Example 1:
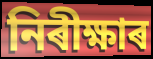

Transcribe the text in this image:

নিৰীক্ষাৰ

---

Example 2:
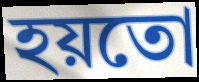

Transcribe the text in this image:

হয়তো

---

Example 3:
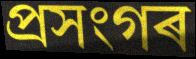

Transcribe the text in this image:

প্ৰসংগৰ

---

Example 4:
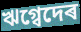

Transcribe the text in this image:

ঋগ্বেদেৰ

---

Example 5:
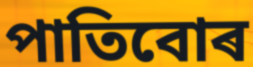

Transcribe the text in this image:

পাতিবোৰ